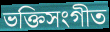
ভক্তিসংগীত